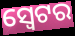
ସ୍ଵେଟର